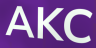
AKC